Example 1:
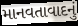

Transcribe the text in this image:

માનવતાવાદનું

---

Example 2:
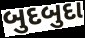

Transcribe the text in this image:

બુદબુદા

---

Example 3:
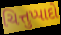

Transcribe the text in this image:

ચિત્તુપ્પાદો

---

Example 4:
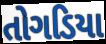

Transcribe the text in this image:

તોગડિયા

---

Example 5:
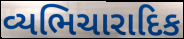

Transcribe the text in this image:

વ્યભિચારાદિક